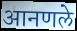
आनणले